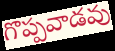
గొప్పవాడవు